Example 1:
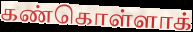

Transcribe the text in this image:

கண்கொள்ளாக்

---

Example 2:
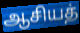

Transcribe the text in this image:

ஆசியத்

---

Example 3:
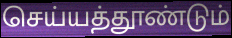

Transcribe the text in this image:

செய்யத்தூண்டும்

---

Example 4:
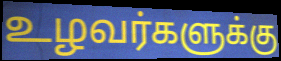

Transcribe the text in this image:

உழவர்களுக்கு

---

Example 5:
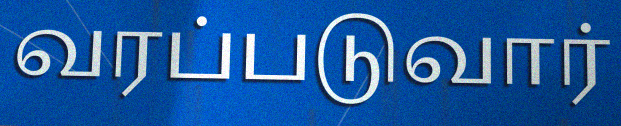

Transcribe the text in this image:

வரப்படுவார்